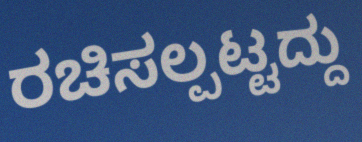
ರಚಿಸಲ್ಪಟ್ಟದ್ದು